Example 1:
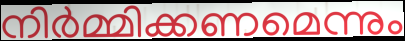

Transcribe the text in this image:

നിർമ്മിക്കണമെന്നും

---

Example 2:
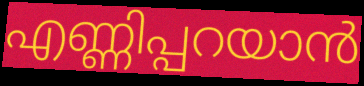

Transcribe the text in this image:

എണ്ണിപ്പറയാൻ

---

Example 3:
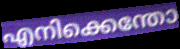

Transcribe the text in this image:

എനിക്കെന്തോ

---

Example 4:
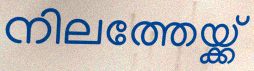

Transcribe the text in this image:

നിലത്തേയ്ക്ക്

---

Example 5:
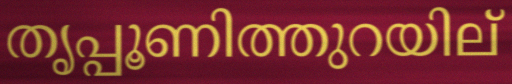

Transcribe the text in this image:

തൃപ്പൂണിത്തുറയില്